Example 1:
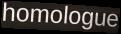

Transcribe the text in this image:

homologue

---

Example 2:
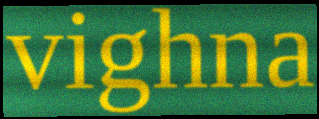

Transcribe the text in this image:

vighna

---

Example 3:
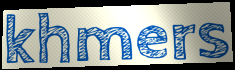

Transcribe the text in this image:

khmers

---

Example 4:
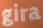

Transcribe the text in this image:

gira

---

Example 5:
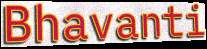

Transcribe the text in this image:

Bhavanti